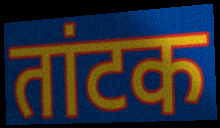
तांटक